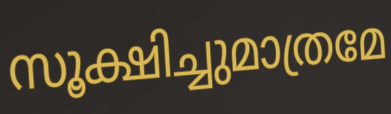
സൂക്ഷിച്ചുമാത്രമേ